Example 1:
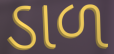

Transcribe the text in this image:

ડાળ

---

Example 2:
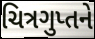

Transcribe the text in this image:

ચિત્રગુપ્તને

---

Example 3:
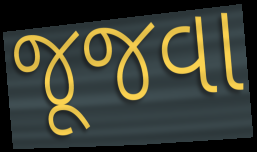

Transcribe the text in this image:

જૂજવા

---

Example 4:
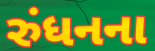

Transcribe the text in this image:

રુંધનના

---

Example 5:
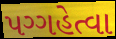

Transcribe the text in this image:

પગ્ગહેત્વા